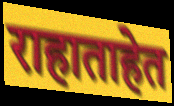
राहाताहेत